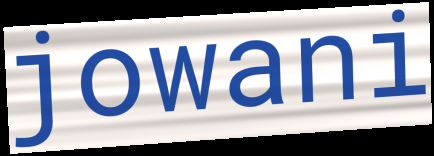
jowani